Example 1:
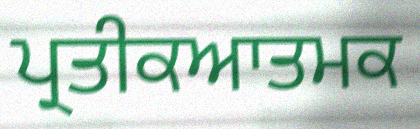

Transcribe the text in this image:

ਪ੍ਰਤੀਕਆਤਮਕ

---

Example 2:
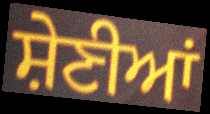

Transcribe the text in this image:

ਸ਼ੇਣੀਆਂ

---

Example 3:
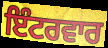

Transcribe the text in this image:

ਇੰਟਰਵਾਰ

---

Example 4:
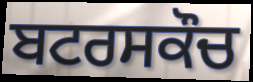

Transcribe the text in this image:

ਬਟਰਸਕੌਚ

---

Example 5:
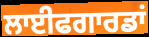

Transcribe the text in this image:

ਲਾਈਫਗਾਰਡਾਂ